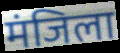
मंजिला